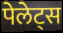
पेलेट्स